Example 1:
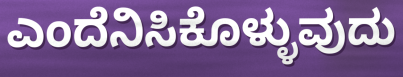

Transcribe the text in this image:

ಎಂದೆನಿಸಿಕೊಳ್ಳುವುದು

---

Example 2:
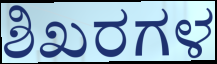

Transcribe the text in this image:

ಶಿಖರಗಳ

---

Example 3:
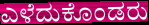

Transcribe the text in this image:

ಎಳೆದುಕೊಂಡರು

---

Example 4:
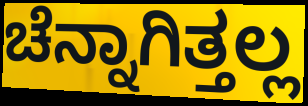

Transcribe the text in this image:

ಚೆನ್ನಾಗಿತ್ತಲ್ಲ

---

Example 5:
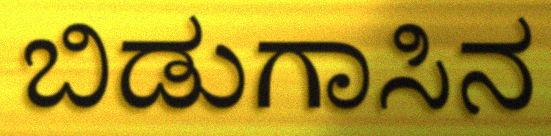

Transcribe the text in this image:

ಬಿಡುಗಾಸಿನ